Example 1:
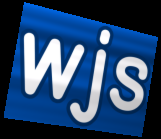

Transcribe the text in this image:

wjs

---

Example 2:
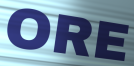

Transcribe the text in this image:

ORE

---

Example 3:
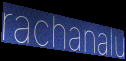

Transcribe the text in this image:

rachanalu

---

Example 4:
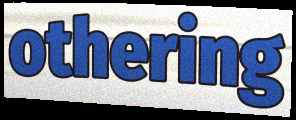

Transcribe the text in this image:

othering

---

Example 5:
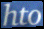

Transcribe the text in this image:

hto